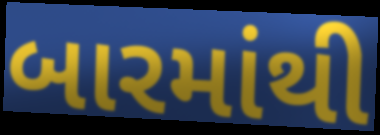
બારમાંથી